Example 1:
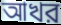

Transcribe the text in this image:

আখর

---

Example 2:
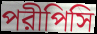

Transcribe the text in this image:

পরীপিসি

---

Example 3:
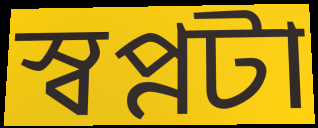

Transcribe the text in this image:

স্বপ্নটা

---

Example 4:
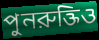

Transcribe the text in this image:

পুনরুক্তিও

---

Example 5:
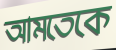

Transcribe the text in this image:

আমতেকে